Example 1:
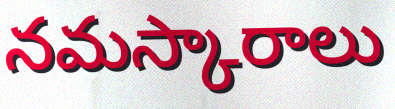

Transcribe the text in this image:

నమస్కారాలు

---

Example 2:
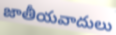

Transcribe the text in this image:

జాతీయవాదులు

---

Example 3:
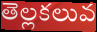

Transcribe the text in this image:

తెల్లకలువ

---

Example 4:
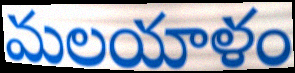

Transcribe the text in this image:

మలయాళం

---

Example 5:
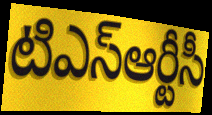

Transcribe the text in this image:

టిఎస్ఆర్టీసీ